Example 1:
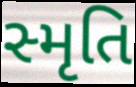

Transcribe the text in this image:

સ્મૃતિ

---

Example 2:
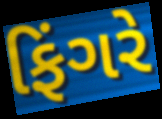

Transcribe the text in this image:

ફિંગરે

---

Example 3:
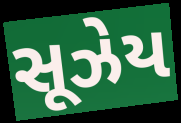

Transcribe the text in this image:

સૂઝેય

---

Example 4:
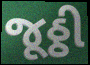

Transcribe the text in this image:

જૂઠ્ઠી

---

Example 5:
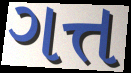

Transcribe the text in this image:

ગત્ત